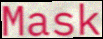
Mask